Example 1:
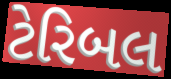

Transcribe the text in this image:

ટેરિબલ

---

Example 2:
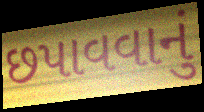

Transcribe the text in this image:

છપાવવાનું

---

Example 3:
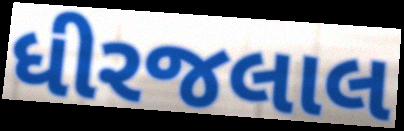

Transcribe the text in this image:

ધીરજલાલ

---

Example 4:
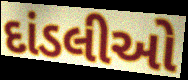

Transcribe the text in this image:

દાંડલીઓ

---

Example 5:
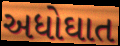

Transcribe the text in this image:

અધોઘાત